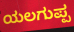
ಯಲಗುಪ್ಪ